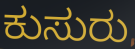
ಕುಸುರು